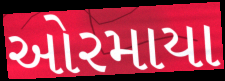
ઓરમાયા